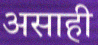
असाही